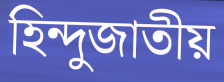
হিন্দুজাতীয়